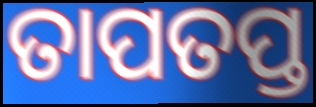
ତାପତପ୍ତ